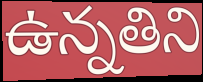
ఉన్నతిని